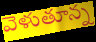
వెళుతూన్న